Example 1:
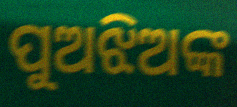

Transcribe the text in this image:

ପୁଅଝିଅଙ୍କ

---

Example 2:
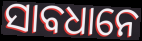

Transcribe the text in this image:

ସାବଧାନେ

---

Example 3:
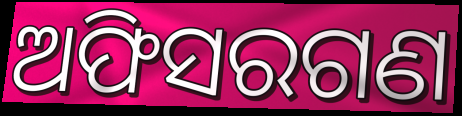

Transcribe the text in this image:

ଅଫିସରଗଣ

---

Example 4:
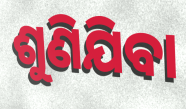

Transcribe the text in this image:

ଶୁଣିଯିବା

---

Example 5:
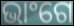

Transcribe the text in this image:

ଭାଂଗେ